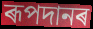
ৰূপদানৰ